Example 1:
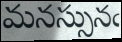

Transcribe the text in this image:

మనస్సునఁ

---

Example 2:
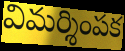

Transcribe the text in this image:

విమర్శింపక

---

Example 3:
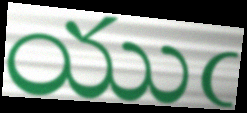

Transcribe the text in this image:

యుఁ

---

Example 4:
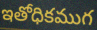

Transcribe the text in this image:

ఇతోధికముగ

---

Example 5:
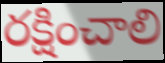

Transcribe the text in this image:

రక్షించాలి